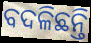
ବଦଳିଛନ୍ତି